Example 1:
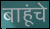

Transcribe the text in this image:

बाहूंचे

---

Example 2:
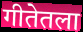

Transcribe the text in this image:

गीतेतला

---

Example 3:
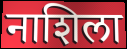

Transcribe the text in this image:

नाशिला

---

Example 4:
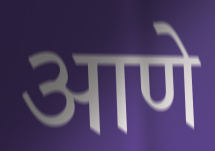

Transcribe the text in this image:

आणे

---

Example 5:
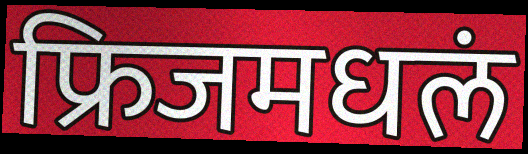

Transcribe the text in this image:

फ्रिजमधलं